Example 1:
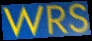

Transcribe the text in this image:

WRS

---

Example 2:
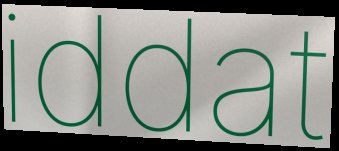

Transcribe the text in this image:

iddat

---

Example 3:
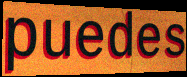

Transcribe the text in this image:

puedes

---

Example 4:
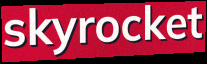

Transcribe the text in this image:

skyrocket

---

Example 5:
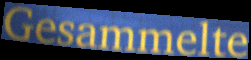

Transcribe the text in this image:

Gesammelte